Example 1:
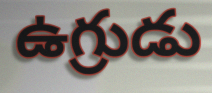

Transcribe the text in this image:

ఉగ్రుడు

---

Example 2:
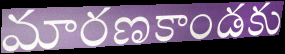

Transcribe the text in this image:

మారణకాండకు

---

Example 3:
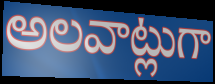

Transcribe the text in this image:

అలవాట్లుగా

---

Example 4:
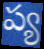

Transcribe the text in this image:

ప్య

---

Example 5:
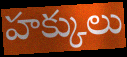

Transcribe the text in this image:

హక్కులు